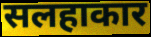
सलहाकार